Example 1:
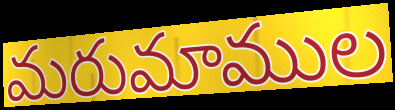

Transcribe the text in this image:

మరుమాముల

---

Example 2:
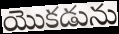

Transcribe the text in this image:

యొకడును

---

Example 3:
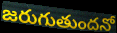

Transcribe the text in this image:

జరుగుతుందనో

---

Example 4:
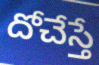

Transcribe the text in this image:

దోచేస్తే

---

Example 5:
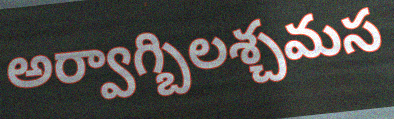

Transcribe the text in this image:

అర్వాగ్బిలశ్చమస